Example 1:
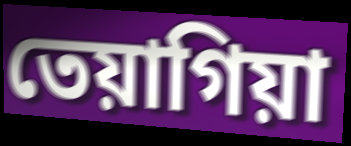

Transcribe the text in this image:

তেয়াগিয়া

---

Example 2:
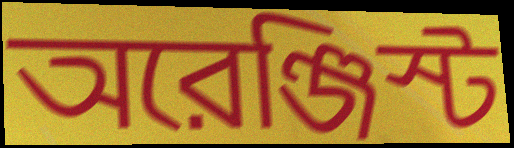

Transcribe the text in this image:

অরেঞ্জিস্ট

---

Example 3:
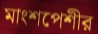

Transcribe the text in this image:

মাংশপেশীর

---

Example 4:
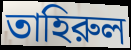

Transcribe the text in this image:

তাহিরুল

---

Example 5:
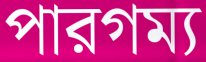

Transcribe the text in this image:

পারগম্য